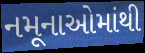
નમૂનાઓમાંથી